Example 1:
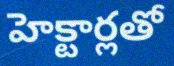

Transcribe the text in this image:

హెక్టార్లతో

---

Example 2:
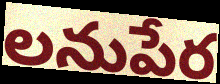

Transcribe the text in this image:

లనుపేర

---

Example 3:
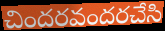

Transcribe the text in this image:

చిందరవందరచేసి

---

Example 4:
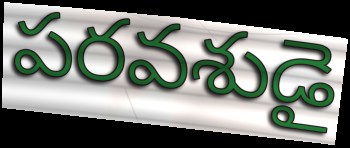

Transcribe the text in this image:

పరవశుడై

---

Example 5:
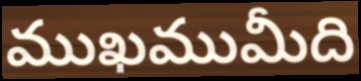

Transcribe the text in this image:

ముఖముమీది